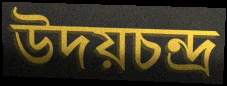
উদয়চন্দ্র